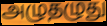
அழுதழுது